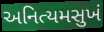
અનિત્યમસુખં